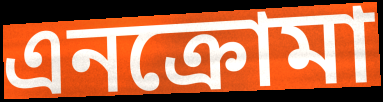
এনক্রোমা